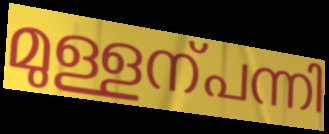
മുള്ളന്പന്നി